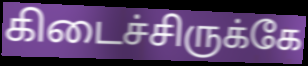
கிடைச்சிருக்கே